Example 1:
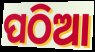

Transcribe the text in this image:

ପଠିଆ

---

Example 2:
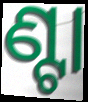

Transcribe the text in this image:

ଣ୍ଟା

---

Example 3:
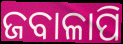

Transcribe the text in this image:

ଜବାଳାପି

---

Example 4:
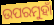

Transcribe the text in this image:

ଉପରମୁହାଁ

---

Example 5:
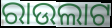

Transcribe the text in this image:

ରାଉଲାଟ